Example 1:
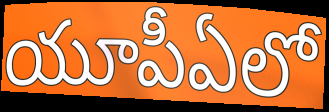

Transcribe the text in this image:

యూపీఏలో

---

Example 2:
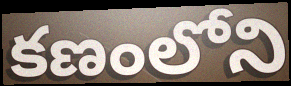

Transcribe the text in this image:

కణంలోని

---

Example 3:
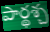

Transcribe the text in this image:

పార్థశ్చ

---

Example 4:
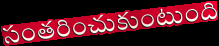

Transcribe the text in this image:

సంతరించుకుంటుంది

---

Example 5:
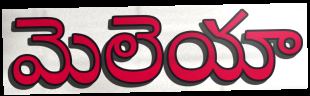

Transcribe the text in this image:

మెలెయా